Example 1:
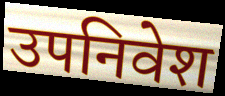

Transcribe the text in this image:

उपनिवेश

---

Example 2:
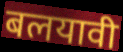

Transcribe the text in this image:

बलयावी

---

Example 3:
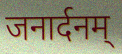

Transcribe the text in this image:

जनार्दनम्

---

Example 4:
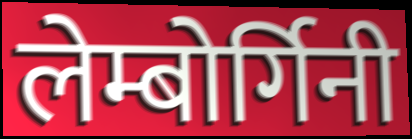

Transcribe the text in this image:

लेम्बोर्गिनी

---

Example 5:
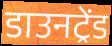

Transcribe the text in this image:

डाउनट्रेंड